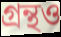
গ্ৰন্থও